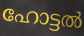
ഹോട്ടൽ